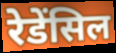
रेडेंसिल